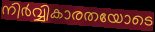
നിർവ്വികാരതയോടെ